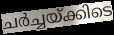
ചർച്ചയ്ക്കിടെ